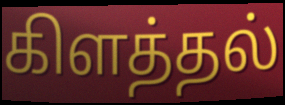
கிளத்தல்